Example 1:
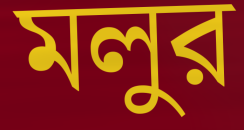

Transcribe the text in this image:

মলুর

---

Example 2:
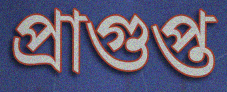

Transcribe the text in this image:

প্রাগুপ্ত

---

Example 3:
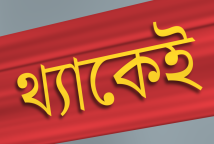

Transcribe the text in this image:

থ্যাকেই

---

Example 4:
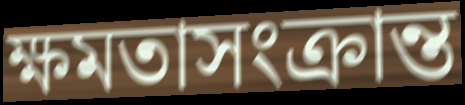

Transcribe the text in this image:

ক্ষমতাসংক্রান্ত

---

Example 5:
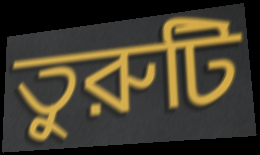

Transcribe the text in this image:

তুরুটি